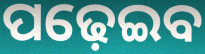
ପଢ଼େଇବ